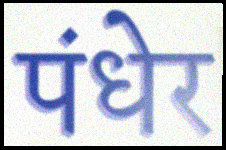
पंधेर